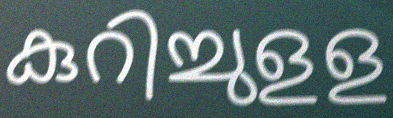
കുറിച്ചുളള